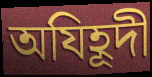
অযিহূদী